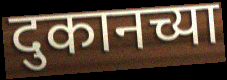
दुकानच्या